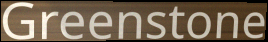
Greenstone